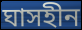
ঘাসহীন